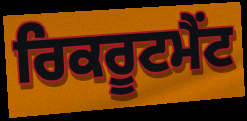
ਰਿਕਰੂਟਮੈਂਟ